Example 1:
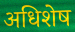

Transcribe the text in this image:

अधिशेष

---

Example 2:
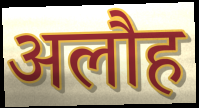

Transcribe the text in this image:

अलौह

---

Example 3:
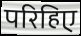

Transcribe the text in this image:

परिहिए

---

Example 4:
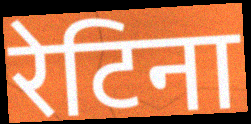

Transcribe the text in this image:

रेटिना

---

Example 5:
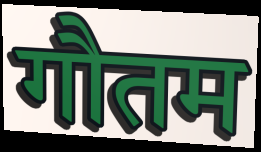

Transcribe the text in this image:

गौतम